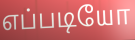
எப்படியோ